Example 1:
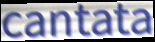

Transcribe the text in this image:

cantata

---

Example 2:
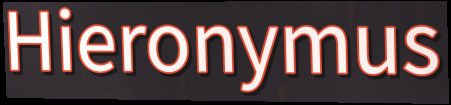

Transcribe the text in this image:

Hieronymus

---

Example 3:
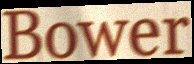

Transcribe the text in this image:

Bower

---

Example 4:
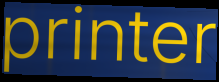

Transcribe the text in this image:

printer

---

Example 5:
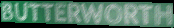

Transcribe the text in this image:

BUTTERWORTH